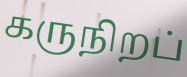
கருநிறப்